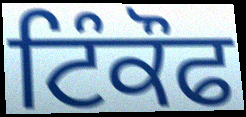
ਟਿੰਕੌਫ